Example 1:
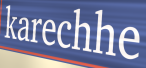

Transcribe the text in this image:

karechhe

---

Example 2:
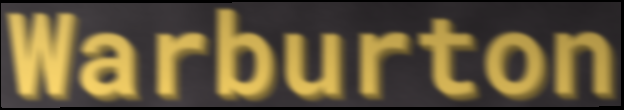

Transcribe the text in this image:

Warburton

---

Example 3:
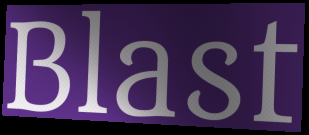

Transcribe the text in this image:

Blast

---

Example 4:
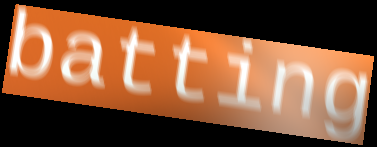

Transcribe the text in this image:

batting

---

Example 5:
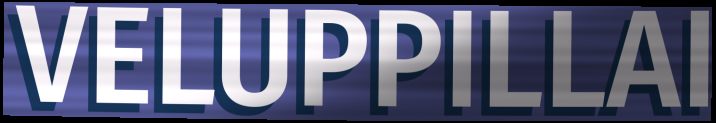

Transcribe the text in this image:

VELUPPILLAI